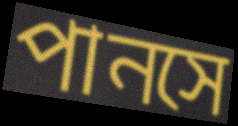
পানসে